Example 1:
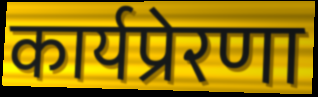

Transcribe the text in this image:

कार्यप्रेरणा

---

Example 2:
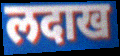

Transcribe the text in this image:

लदाख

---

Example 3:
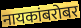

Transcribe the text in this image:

नायकांबरोबर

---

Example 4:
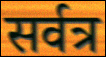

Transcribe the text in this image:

सर्वत्र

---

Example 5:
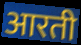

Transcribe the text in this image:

आरती